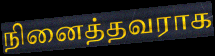
நினைத்தவராக